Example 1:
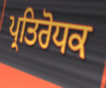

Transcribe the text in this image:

ਪ੍ਰਤਿਰੋਧਕ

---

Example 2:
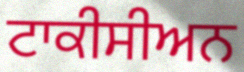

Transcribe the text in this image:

ਟਾਕੀਸੀਅਨ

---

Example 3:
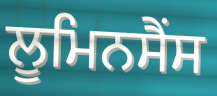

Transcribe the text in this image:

ਲੂਮਿਨਸੈਂਸ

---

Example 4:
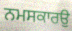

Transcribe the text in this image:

ਨਮਸਕਾਰਉ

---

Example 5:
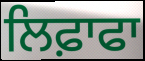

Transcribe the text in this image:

ਲਿਫ਼ਾਫਾ